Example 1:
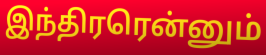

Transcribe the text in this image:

இந்திரரென்னும்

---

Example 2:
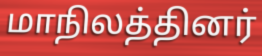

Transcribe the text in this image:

மாநிலத்தினர்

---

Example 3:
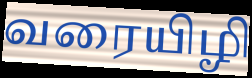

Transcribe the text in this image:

வரையிழி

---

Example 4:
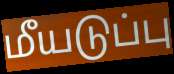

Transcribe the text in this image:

மீயடுப்பு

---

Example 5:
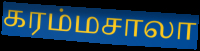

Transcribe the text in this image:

கரம்மசாலா